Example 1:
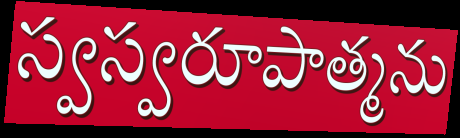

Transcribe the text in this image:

స్వస్వరూపాత్మను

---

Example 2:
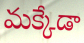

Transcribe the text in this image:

మక్కేడా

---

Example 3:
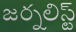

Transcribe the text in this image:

జర్నలిస్ట్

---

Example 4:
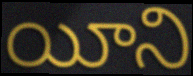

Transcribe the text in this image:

యీని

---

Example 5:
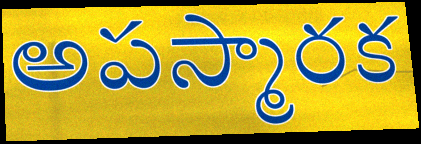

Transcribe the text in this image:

అపస్మారక